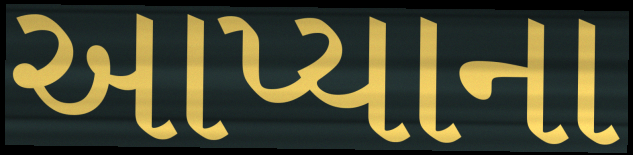
આપ્યાના